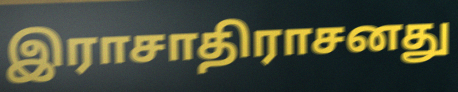
இராசாதிராசனது